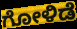
ಗೋಳಿಡೆ